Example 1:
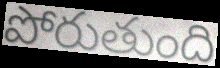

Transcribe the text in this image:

పోరుతుంది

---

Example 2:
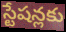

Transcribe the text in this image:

స్టేషన్లకు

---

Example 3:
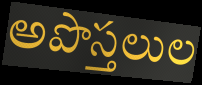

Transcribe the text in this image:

అపొస్తలుల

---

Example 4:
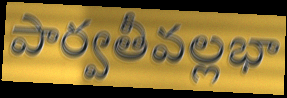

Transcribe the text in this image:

పార్వతీవల్లభా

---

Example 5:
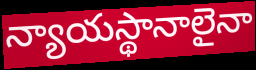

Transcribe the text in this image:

న్యాయస్థానాలైనా